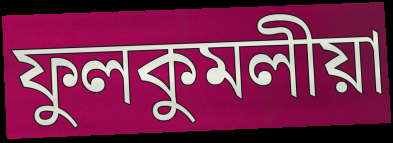
ফুলকুমলীয়া